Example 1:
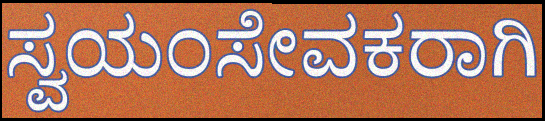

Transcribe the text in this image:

ಸ್ವಯಂಸೇವಕರಾಗಿ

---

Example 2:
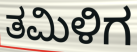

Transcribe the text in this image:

ತಮಿಳಿಗ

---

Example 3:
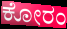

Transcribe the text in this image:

ಕೋರಂ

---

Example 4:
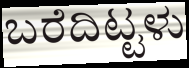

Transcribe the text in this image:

ಬರೆದಿಟ್ಟಳು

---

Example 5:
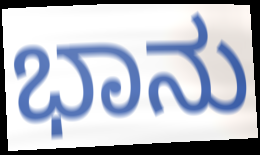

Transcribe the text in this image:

ಭಾನು